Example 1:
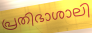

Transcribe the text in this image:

പ്രതിഭാശാലി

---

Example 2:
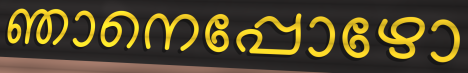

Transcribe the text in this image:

ഞാനെപ്പോഴോ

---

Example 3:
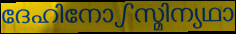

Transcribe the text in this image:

ദേഹിനോഽസ്മിന്യഥാ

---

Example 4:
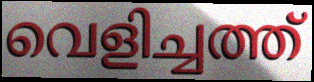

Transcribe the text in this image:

വെളിച്ചത്ത്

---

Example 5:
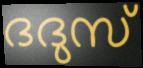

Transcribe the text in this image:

ദദുസ്